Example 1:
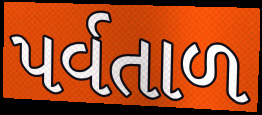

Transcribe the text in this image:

પર્વતાળ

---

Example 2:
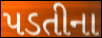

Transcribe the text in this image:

પડતીના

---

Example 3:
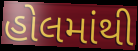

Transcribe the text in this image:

હોલમાંથી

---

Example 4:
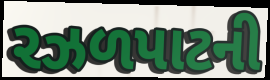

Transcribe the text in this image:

રઝળપાટની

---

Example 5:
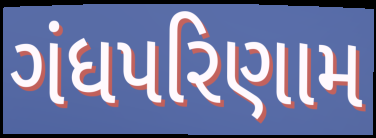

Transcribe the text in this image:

ગંધપરિણામ